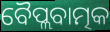
ବୈପ୍ଲବାତ୍ମକ